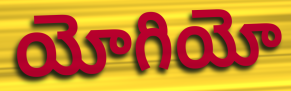
యోగియో